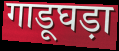
गाडूघड़ा